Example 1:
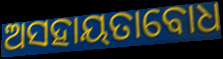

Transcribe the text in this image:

ଅସହାୟତାବୋଧ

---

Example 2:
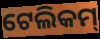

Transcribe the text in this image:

ଟେଲିକମ୍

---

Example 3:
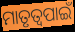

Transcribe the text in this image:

ମାତୃତ୍ୱପାଇଁ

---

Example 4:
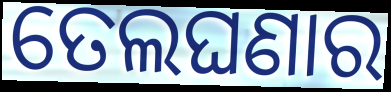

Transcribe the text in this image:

ତେଲଘଣାର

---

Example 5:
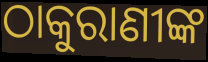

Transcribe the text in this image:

ଠାକୁରାଣୀଙ୍କ